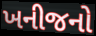
ખનીજનો